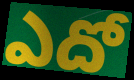
ఎదో